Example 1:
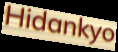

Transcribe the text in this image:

Hidankyo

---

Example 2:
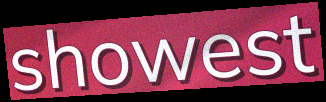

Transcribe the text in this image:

showest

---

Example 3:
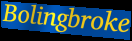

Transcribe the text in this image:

Bolingbroke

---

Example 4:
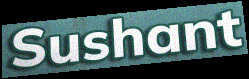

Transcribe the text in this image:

Sushant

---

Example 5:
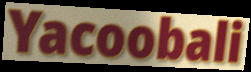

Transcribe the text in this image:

Yacoobali